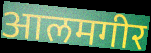
आलमगीर